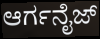
ಆರ್ಗನೈಜ್